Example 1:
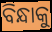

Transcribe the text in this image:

ବିନ୍ଧାକୁ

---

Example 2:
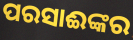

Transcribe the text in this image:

ପରସାଈଙ୍କର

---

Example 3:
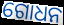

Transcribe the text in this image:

ଗୋଧନ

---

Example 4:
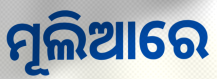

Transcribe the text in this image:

ମୂଲିଆରେ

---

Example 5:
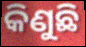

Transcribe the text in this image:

କିଣୁଛି